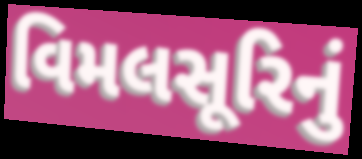
વિમલસૂરિનું